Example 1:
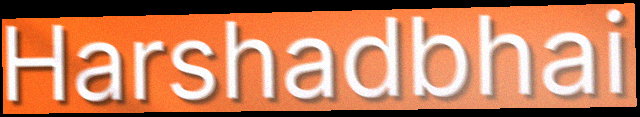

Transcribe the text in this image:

Harshadbhai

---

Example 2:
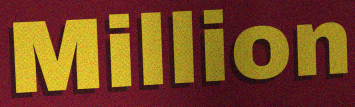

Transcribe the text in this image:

Million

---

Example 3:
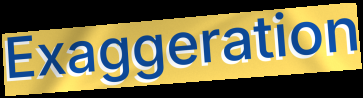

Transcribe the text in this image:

Exaggeration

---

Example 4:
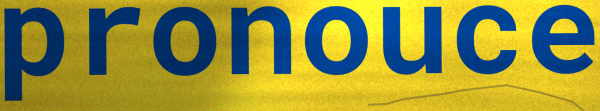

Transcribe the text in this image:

pronouce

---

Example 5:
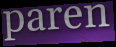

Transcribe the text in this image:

paren